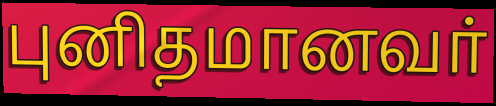
புனிதமானவர்